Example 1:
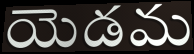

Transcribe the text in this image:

యెడమ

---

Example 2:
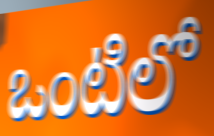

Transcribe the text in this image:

ఒంటిలో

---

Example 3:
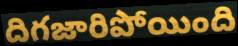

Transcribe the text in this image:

దిగజారిపోయింది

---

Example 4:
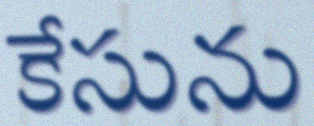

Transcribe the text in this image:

కేసును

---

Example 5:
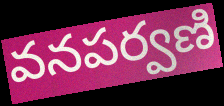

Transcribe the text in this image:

వనపర్వణి